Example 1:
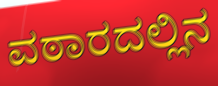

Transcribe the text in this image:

ವಠಾರದಲ್ಲಿನ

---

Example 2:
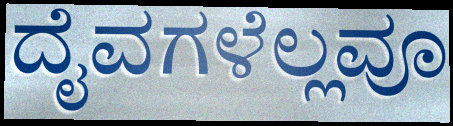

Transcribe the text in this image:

ದೈವಗಳೆಲ್ಲವೂ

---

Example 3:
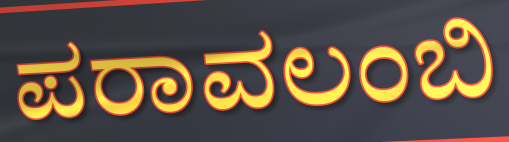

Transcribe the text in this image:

ಪರಾವಲಂಬಿ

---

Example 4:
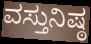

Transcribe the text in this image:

ವಸ್ತುನಿಷ್ಠ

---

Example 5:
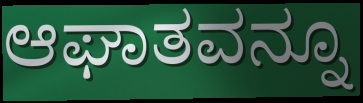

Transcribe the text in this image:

ಆಘಾತವನ್ನೂ